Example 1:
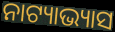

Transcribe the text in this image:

ନାଟ୍ୟାଭ୍ୟାସ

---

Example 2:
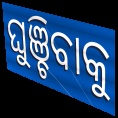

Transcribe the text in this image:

ଘୁଞ୍ଚିବାକୁ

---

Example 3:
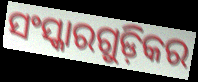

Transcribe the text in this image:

ସଂସ୍କାରଗୁଡ଼ିକର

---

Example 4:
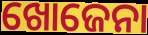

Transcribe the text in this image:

ଖୋଜେନା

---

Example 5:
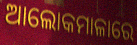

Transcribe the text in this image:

ଆଲୋକମାଳାରେ